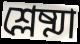
শ্লেষ্মা